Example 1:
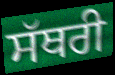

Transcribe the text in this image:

ਸੱਥਰੀ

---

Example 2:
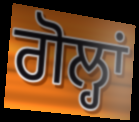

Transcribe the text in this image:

ਗੋਲ੍ਹਾਂ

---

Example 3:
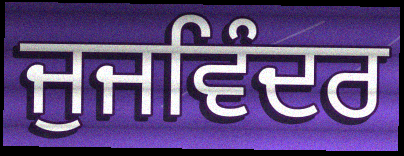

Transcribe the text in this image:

ਜੁਜਵਿੰਦਰ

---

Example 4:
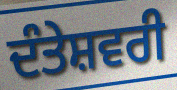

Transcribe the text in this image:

ਦੰਤੇਸ਼ਵਰੀ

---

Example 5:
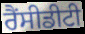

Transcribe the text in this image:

ਰੈਂਸੀਡੀਟੀ